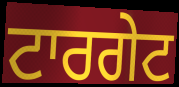
ਟਾਰਗੇਟ